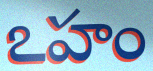
ఽహం